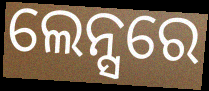
ଲେନ୍ସରେ